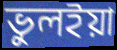
ভুলইয়া